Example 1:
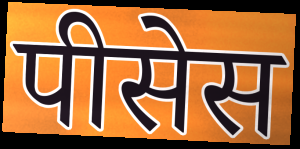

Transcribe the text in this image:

पीसेस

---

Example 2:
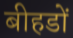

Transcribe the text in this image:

बीहडों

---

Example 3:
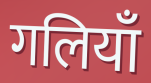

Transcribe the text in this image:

गलियाँ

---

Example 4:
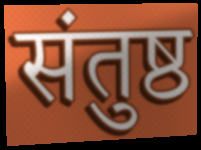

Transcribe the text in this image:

संतुष्ठ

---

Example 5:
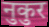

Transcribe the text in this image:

नुकुर